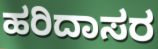
ಹರಿದಾಸರ